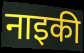
नाइकी